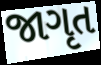
જાગૃત